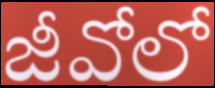
జీవోలో